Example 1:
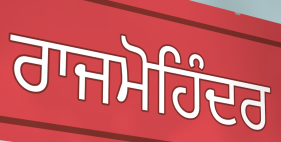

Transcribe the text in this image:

ਰਾਜਮੋਹਿੰਦਰ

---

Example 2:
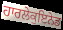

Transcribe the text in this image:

ਹਾਰਲੇਕੁਇਨੇਡ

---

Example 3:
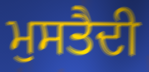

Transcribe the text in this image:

ਮੁਸਤੈਦੀ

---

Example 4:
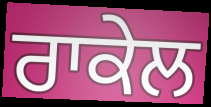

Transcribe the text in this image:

ਰਾਕੇਲ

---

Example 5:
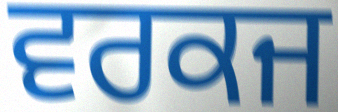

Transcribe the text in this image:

ਵਰਕਜ